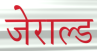
जेराल्ड